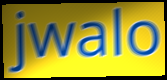
jwalo